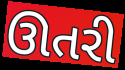
ઊતરી